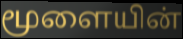
மூளையின்